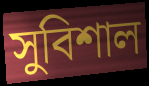
সুবিশাল